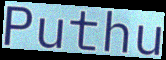
Puthu